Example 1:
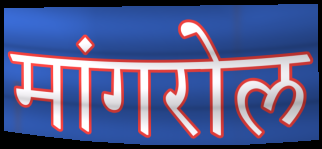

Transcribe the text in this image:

मांगरोल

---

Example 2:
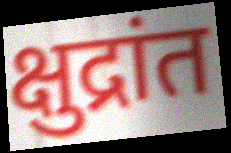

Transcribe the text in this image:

क्षुद्रांत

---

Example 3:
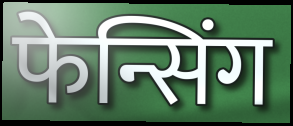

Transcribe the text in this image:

फेन्सिंग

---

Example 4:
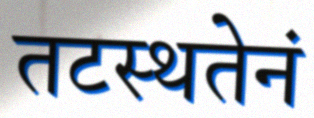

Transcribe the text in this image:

तटस्थतेनं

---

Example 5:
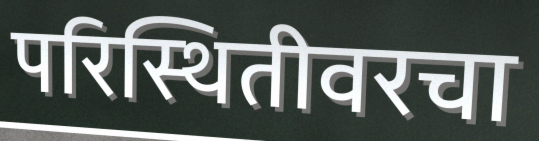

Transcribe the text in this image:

परिस्थितीवरचा